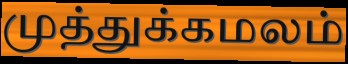
முத்துக்கமலம்